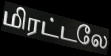
மிரட்டலே